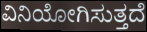
ವಿನಿಯೋಗಿಸುತ್ತದೆ